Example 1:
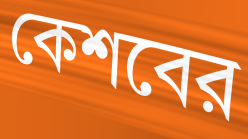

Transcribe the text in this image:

কেশবের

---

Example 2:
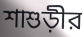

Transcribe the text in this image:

শাশুড়ীর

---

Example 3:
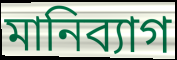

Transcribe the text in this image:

মানিব্যাগ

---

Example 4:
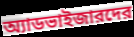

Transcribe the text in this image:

অ্যাডভাইজারদের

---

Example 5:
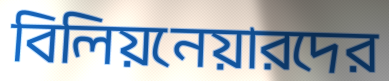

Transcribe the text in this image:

বিলিয়নেয়ারদের